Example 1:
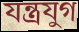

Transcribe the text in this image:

যন্ত্রযুগ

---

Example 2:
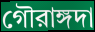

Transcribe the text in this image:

গৌরাঙ্গদা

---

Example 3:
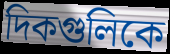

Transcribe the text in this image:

দিকগুলিকে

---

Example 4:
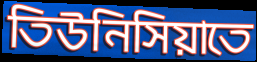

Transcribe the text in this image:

তিউনিসিয়াতে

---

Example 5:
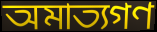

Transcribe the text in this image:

অমাত্যগণ